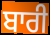
ਬਾਰੀ